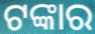
ଟଙ୍କାର